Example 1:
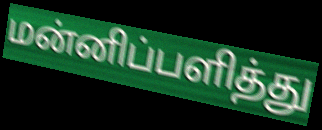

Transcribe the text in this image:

மன்னிப்பளித்து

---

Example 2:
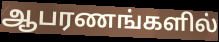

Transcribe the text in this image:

ஆபரணங்களில்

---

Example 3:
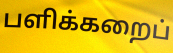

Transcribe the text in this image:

பளிக்கறைப்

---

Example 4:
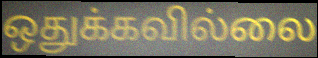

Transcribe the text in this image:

ஒதுக்கவில்லை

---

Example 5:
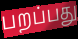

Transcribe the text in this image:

பறப்பது